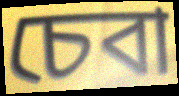
চেবা